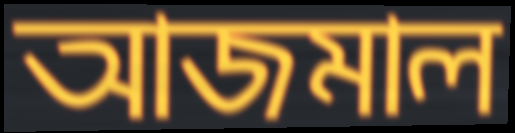
আজমাল